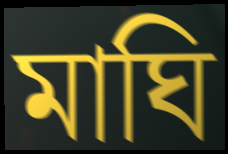
মাঘি